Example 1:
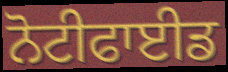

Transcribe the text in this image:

ਨੋਟੀਫਾਈਡ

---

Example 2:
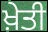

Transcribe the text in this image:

ਖ਼ੇਤੀ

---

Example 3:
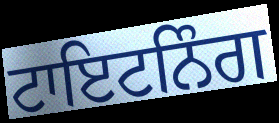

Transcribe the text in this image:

ਟਾਇਟਨਿੰਗ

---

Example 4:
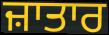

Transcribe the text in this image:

ਜ਼ਾਤਾਰ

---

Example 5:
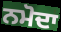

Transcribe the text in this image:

ਨਮੋਦਾ